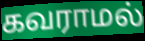
கவராமல்